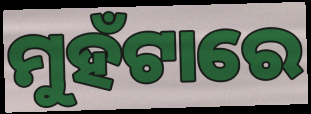
ମୁହଁଟାରେ